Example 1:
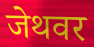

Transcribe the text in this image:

जेथवर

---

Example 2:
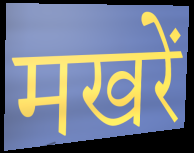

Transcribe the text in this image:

मखरें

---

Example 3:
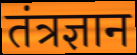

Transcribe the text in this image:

तंत्रज्ञान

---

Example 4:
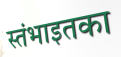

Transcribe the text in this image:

स्तंभाइतका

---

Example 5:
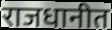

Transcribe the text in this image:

राजधानीत